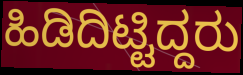
ಹಿಡಿದಿಟ್ಟಿದ್ದರು